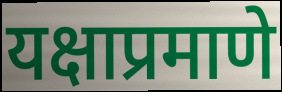
यक्षाप्रमाणे